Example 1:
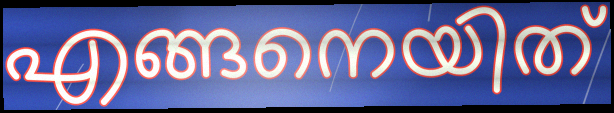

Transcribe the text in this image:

എങ്ങനെയിത്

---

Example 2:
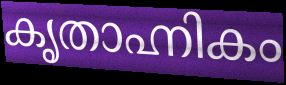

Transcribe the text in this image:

കൃതാഹ്നികം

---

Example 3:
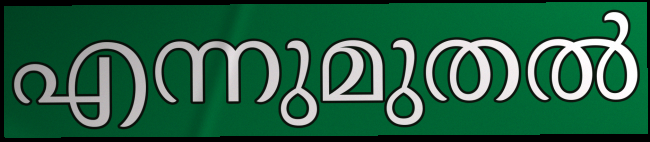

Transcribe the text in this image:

എന്നുമുതൽ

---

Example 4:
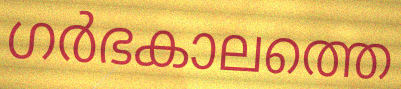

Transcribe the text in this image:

ഗർഭകാലത്തെ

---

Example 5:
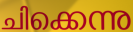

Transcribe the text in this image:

ചിക്കെന്നു